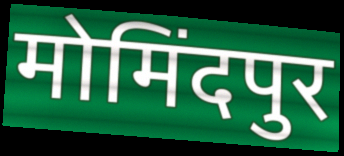
मोमिंदपुर